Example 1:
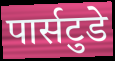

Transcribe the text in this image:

पार्सटुडे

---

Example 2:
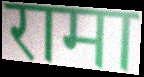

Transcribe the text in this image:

रामा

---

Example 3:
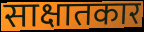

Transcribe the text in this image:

साक्षातकार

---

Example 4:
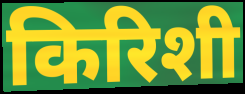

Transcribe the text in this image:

किरिशी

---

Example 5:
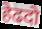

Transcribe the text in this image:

हेढदो